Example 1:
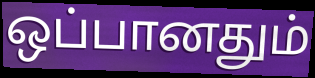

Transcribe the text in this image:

ஒப்பானதும்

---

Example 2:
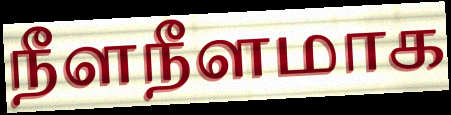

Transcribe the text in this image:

நீளநீளமாக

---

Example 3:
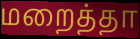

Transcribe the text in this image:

மறைத்தா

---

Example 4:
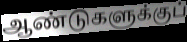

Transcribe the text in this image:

ஆண்டுகளுக்குப்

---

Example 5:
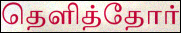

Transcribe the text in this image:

தெளித்தோர்